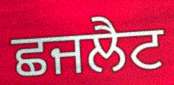
ਛਜਲੈਟ